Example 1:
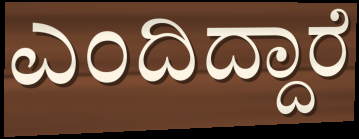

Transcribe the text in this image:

ಎಂದಿದ್ದಾರೆ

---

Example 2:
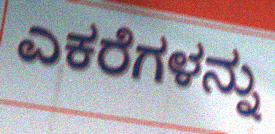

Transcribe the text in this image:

ಎಕರೆಗಳನ್ನು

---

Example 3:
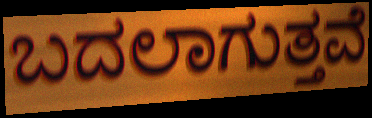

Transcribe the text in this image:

ಬದಲಾಗುತ್ತವೆ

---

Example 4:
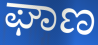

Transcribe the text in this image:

ಘಾಣ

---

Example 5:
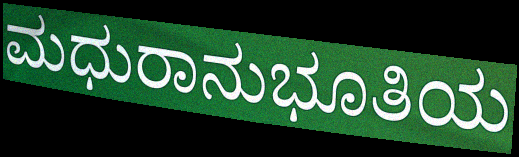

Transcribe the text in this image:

ಮಧುರಾನುಭೂತಿಯ